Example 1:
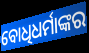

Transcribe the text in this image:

ବୋଧିଧର୍ମାଙ୍କର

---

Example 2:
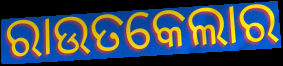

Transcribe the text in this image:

ରାଉତକେଲାର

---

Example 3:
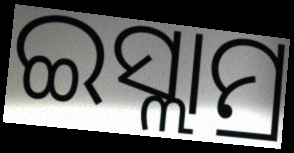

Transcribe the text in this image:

ଇସ୍ଲାମ୍ର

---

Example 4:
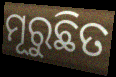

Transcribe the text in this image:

ମୂରୁଛିତ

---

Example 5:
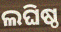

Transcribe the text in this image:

ଲଘିଷ୍ଠ